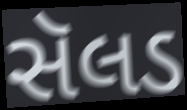
સૅલડ